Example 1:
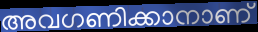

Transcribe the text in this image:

അവഗണിക്കാനാണ്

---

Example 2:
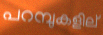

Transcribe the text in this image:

പറമ്പുകളില്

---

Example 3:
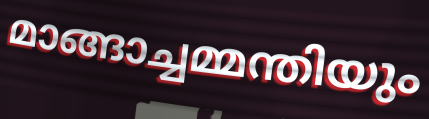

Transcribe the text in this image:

മാങ്ങാച്ചമ്മന്തിയും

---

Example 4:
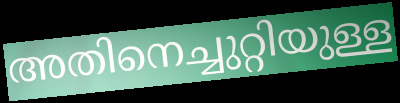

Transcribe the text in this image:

അതിനെച്ചുറ്റിയുള്ള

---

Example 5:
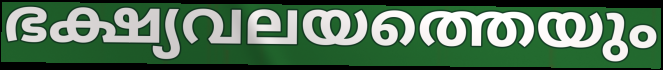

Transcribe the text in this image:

ഭക്ഷ്യവലയത്തെയും